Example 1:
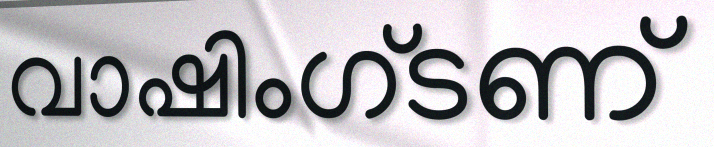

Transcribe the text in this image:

വാഷിംഗ്ടണ്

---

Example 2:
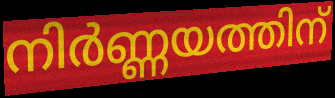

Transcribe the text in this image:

നിർണ്ണയത്തിന്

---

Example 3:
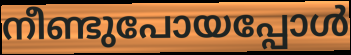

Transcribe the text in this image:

നീണ്ടുപോയപ്പോൾ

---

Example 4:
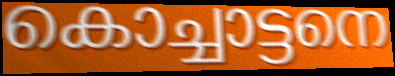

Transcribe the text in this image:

കൊച്ചാട്ടനെ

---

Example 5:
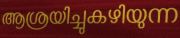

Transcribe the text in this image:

ആശ്രയിച്ചുകഴിയുന്ന